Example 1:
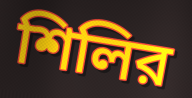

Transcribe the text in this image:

শিলির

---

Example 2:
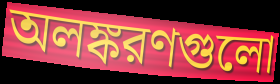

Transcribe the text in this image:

অলঙ্করণগুলো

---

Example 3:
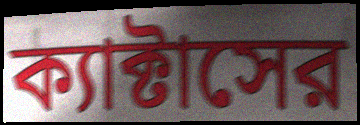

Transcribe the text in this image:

ক্যাক্টাসের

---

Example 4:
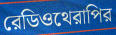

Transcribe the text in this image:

রেডিওথেরাপির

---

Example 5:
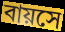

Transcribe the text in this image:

বায়সে